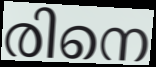
രിനെ